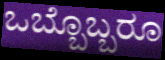
ಒಬ್ಬೊಬ್ಬರೂ